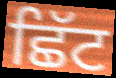
ਛਿੱਟ